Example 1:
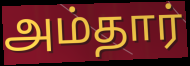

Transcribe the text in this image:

அம்தார்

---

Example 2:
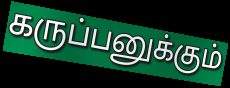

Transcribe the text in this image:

கருப்பனுக்கும்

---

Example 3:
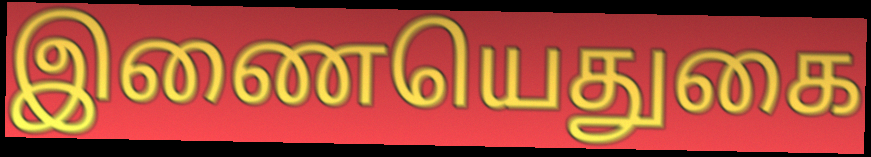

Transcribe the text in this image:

இணையெதுகை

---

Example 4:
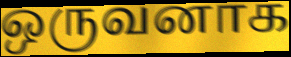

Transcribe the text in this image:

ஒருவனாக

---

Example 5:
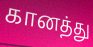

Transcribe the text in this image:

கானத்து